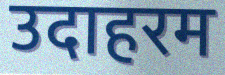
उदाहरम